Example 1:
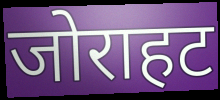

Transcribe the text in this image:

जोराहट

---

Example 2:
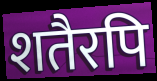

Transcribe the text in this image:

शतैरपि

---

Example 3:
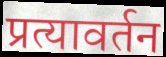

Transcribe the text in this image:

प्रत्‍यावर्तन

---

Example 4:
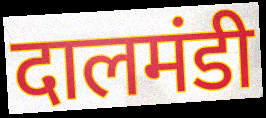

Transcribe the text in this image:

दालमंडी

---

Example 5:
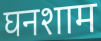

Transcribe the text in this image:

घनशाम